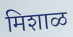
मिशाळ